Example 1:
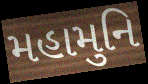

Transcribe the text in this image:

મહામુનિ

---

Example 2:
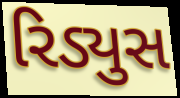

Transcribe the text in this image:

રિડ્યુસ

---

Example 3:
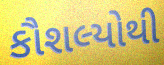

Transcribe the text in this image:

કૌશલ્યોથી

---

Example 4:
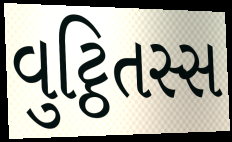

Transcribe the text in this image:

વુટ્ઠિતસ્સ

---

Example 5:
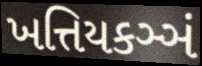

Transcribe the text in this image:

ખત્તિયકઞ્ઞં